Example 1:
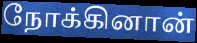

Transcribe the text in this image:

நோக்கினான்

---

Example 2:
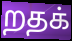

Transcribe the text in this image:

றதக்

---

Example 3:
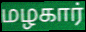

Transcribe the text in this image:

மழகார்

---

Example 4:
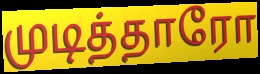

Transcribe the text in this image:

முடித்தாரோ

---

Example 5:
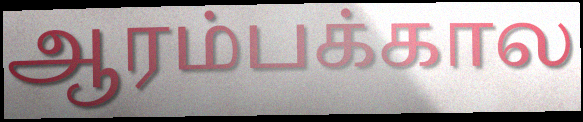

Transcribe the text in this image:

ஆரம்பக்கால